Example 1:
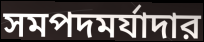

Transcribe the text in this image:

সমপদমর্যাদার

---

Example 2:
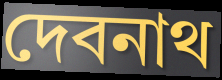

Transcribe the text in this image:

দেবনাথ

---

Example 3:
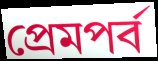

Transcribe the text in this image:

প্রেমপর্ব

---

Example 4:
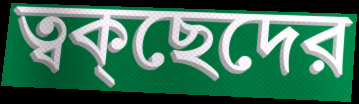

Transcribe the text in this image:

ত্বক্ছেদের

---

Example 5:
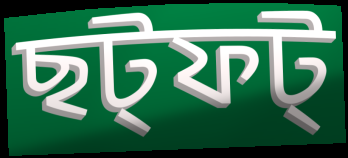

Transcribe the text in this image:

ছট্‌ফট্